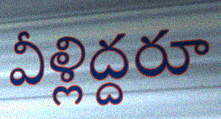
వీళ్లిద్దరూ